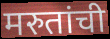
मरुतांची